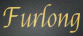
Furlong